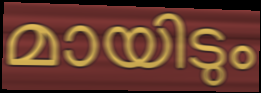
മായിടും